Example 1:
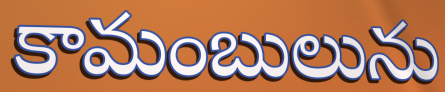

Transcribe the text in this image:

కామంబులును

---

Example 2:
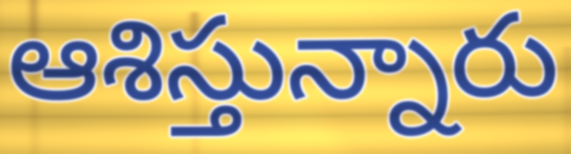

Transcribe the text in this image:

ఆశిస్తున్నారు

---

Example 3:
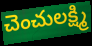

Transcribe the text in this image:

చెంచులక్ష్మి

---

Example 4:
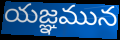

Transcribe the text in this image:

యజ్ఞమున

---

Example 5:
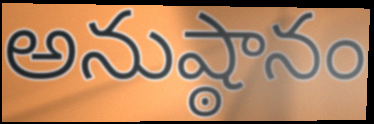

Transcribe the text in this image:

అనుష్ఠానం